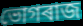
ভোগৰাজ